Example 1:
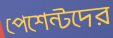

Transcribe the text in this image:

পেশেন্টদের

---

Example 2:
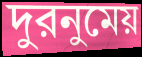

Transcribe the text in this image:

দুরনুমেয়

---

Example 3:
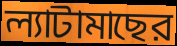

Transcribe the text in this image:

ল্যাটামাছের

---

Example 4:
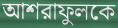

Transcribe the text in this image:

আশরাফুলকে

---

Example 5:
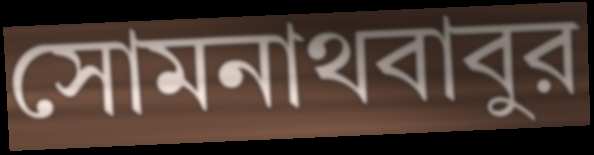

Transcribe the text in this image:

সোমনাথবাবুর